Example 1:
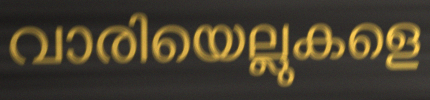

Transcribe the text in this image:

വാരിയെല്ലുകളെ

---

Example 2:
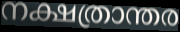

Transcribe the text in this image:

നക്ഷത്രാന്തര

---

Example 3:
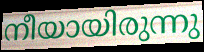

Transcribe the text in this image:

നീയായിരുന്നു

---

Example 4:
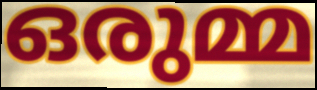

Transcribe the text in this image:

ഒരുമ്മ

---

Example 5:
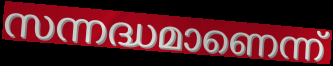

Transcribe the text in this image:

സന്നദ്ധമാണെന്ന്